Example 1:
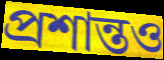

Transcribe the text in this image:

প্রশান্তও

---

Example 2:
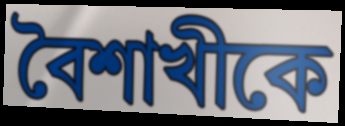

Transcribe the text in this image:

বৈশাখীকে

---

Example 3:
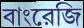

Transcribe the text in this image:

বাংরেজি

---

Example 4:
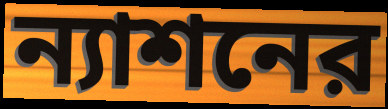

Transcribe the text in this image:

ন্যাশনের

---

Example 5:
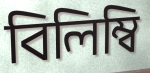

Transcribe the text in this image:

বিলিম্বি